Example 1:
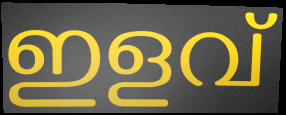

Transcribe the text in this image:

ഇളവ്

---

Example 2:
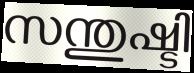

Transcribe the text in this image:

സന്തുഷ്ടി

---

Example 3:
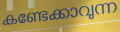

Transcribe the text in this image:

കണ്ടേക്കാവുന്ന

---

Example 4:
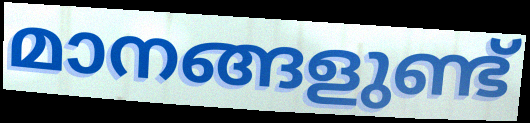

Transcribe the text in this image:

മാനങ്ങളുണ്ട്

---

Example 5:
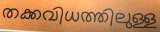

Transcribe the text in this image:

തക്കവിധത്തിലുള്ള